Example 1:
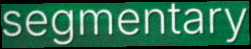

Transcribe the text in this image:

segmentary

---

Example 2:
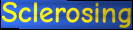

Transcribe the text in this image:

Sclerosing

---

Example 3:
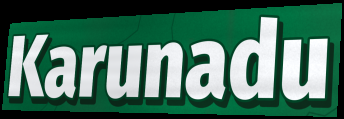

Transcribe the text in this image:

Karunadu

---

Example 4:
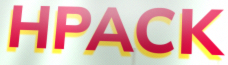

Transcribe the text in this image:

HPACK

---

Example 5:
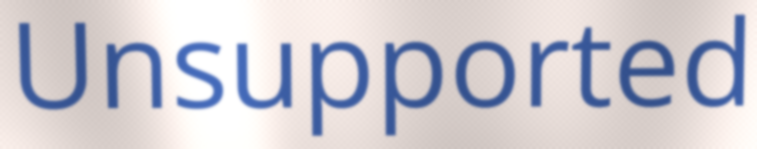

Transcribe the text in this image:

Unsupported